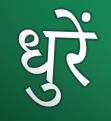
धुरें